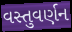
વસ્તુવર્ણન